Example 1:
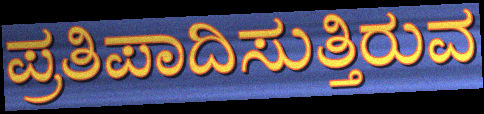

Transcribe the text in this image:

ಪ್ರತಿಪಾದಿಸುತ್ತಿರುವ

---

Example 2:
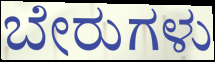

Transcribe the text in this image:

ಬೇರುಗಳು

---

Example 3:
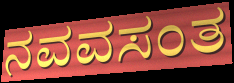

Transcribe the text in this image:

ನವವಸಂತ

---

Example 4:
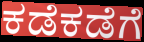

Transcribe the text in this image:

ಕಡೆಕಡೆಗೆ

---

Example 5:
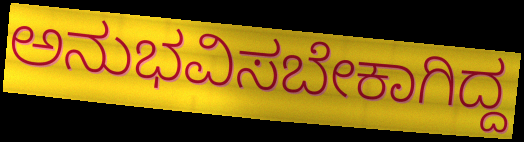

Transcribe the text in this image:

ಅನುಭವಿಸಬೇಕಾಗಿದ್ದ